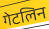
गेटलिन